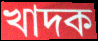
খাদক